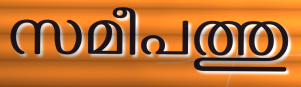
സമീപത്തു